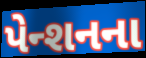
પેન્શનના